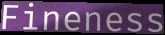
Fineness